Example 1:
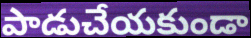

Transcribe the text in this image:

పాడుచేయకుండా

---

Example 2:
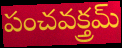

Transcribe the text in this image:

పంచవక్త్రమ్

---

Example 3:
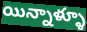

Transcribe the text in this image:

యిన్నాళ్ళూ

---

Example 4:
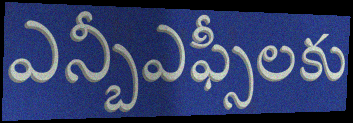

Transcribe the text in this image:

ఎన్బీఎఫ్సీలకు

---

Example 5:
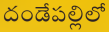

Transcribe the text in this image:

దండేపల్లిలో